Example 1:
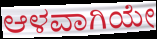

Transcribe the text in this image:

ಆಳವಾಗಿಯೇ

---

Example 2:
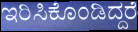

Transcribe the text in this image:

ಇರಿಸಿಕೊಂಡಿದ್ದರೆ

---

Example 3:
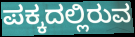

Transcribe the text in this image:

ಪಕ್ಕದಲ್ಲಿರುವ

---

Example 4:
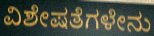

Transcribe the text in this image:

ವಿಶೇಷತೆಗಳೇನು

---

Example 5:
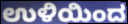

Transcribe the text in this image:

ಉಳಿಯಿಂದ